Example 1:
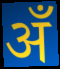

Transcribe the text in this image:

अँ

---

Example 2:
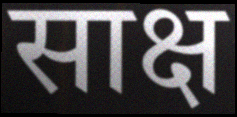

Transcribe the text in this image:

साक्ष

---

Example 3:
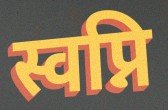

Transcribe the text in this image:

स्वप्नि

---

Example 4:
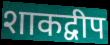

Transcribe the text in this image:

शाकद्वीप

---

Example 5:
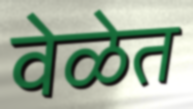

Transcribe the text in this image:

वेळेत